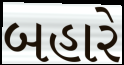
બહારે